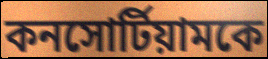
কনসোর্টিয়ামকে